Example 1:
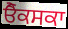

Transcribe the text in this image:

ਓੈਕਸਕਾ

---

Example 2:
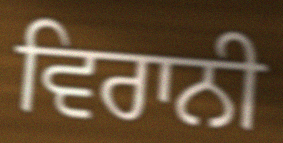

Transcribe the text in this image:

ਵਿਰਾਨੀ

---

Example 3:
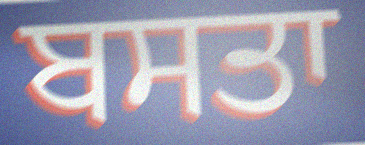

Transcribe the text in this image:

ਬਸਤਾ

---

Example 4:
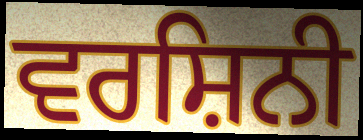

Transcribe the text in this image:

ਵਰਸ਼ਿਨੀ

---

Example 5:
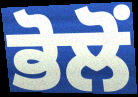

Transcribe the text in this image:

ਭੋਲੋਂ